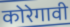
कोरेगावी